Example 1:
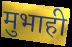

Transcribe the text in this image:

मुभाही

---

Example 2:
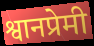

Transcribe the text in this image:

श्वानप्रेमी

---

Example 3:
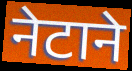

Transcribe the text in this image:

नेटाने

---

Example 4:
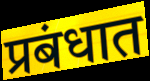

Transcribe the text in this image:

प्रबंधात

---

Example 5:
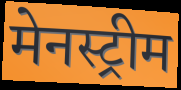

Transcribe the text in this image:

मेनस्ट्रीम